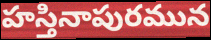
హస్తినాపురమున